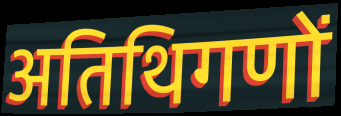
अतिथिगणों